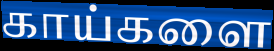
காய்களை